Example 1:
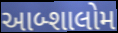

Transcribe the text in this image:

આબ્શાલોમ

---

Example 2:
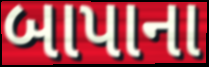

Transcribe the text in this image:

બાપાના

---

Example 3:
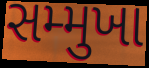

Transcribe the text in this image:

સમ્મુખા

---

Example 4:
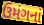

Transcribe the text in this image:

ઉમંગનાં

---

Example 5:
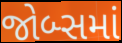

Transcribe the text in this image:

જોબ્સમાં